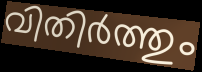
വിതിർത്തും